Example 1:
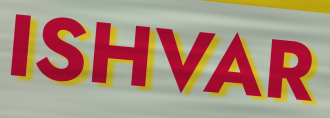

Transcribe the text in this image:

ISHVAR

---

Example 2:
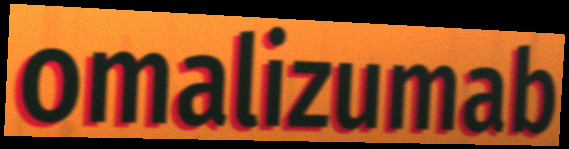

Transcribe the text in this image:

omalizumab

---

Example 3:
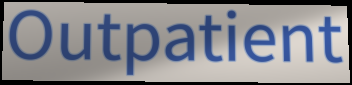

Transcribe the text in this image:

Outpatient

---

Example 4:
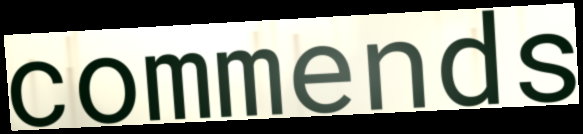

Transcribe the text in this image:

commends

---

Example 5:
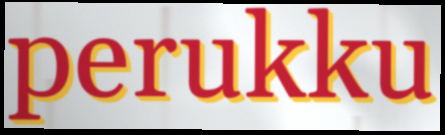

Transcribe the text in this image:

perukku